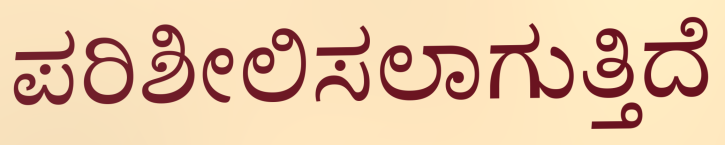
ಪರಿಶೀಲಿಸಲಾಗುತ್ತಿದೆ